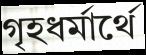
গৃহধর্মার্থে